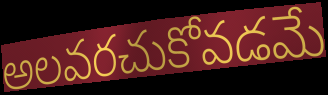
అలవరచుకోవడమే